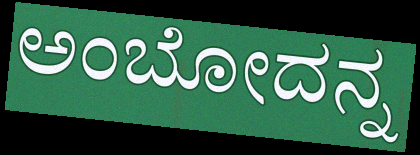
ಅಂಬೋದನ್ನ